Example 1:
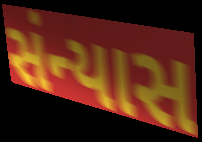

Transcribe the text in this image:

સંન્યાસ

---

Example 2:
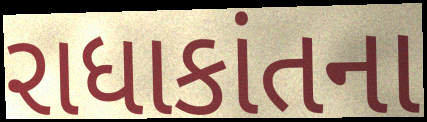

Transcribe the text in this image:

રાધાકાંતના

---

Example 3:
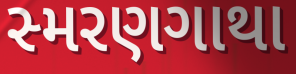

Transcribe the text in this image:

સ્મરણગાથા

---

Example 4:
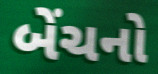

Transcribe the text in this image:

બેંચનો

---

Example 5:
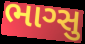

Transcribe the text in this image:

ભાગ્સુ